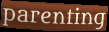
parenting